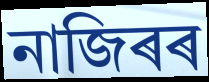
নাজিৰৰ